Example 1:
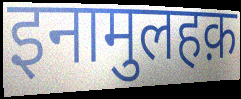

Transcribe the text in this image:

इनामुलहक़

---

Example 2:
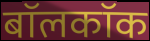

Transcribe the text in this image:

बॉलकॉक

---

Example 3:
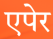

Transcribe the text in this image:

एपेर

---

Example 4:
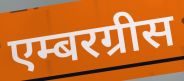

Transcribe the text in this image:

एम्बरग्रीस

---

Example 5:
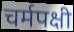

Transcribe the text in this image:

चर्मपक्षी